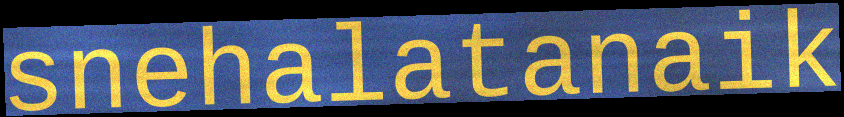
snehalatanaik